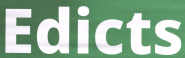
Edicts